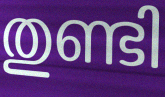
തുണ്ടി